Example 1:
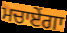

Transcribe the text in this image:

ਮਚਾਏਂਗਾ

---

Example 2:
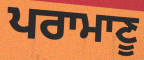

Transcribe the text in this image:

ਪਰਾਮਾਣੂ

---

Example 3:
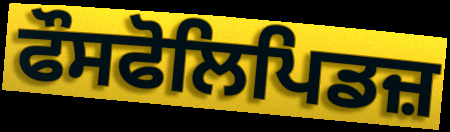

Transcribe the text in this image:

ਫੌਸਫੋਲਿਪਿਡਜ਼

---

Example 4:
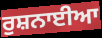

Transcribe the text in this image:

ਰੁਸ਼ਨਾਈਆ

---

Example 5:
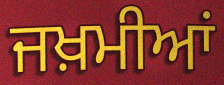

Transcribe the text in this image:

ਜਖ਼ਮੀਆਂ